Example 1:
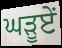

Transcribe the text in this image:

ਘੜੂਏਂ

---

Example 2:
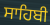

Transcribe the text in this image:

ਸਾਹਿਬੀ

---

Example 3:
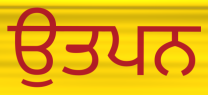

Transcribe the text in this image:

ਉਤਪਨ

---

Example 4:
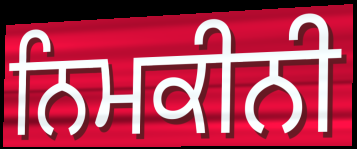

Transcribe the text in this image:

ਨਿਮਕੀਨੀ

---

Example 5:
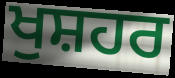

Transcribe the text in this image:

ਖੁਸ਼ਹਰ